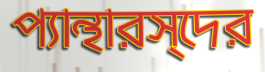
প্যান্থারস্‌দের